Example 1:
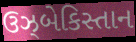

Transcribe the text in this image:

ઉઝ્બેકિસ્તાન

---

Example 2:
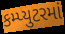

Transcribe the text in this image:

કમ્પ્યુટરમાં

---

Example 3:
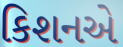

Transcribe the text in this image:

કિશનએ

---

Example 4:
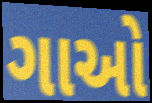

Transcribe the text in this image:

ગાઓ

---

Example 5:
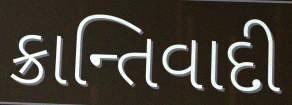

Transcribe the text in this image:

ક્રાન્તિવાદી